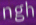
ngh